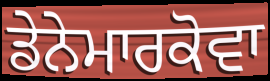
ਡੇਨੇਮਾਰਕੋਵਾ